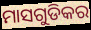
ମାସଗୁଡିକର